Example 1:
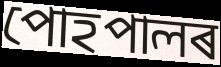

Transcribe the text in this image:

পোহপালৰ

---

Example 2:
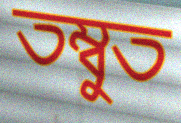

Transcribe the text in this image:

তম্বুত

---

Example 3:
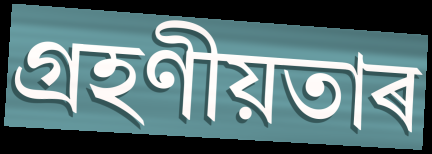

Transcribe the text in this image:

গ্ৰহণীয়তাৰ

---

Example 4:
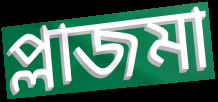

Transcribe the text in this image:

প্লাজমা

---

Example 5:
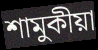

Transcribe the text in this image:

শামুকীয়া